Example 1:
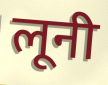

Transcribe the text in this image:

लूनी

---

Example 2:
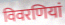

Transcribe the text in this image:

विवरणियां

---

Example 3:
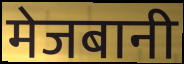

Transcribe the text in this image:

मेजबानी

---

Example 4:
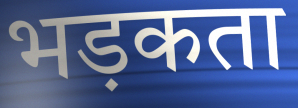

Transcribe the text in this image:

भड़कता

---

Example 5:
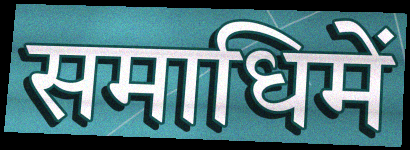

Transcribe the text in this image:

समाधिमें